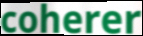
coherer